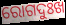
ରୋଗଦୁଃଖ